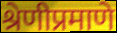
श्रेणीप्रमाणे